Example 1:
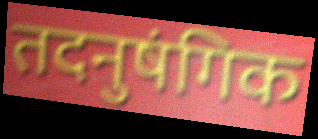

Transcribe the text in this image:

तदनुषंगिक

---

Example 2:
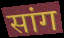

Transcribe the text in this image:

सांग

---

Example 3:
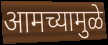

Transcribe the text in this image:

आमच्यामुळे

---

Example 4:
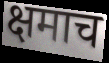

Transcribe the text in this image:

क्षमाच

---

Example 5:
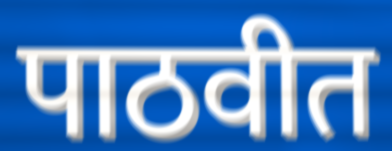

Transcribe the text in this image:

पाठवीत